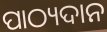
ପାଠ୍ୟଦାନ